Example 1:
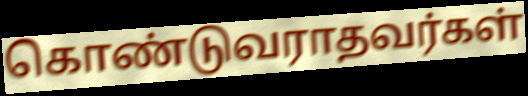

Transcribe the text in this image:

கொண்டுவராதவர்கள்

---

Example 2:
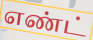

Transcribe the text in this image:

எண்ட்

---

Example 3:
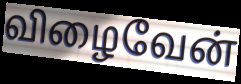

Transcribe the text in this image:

விழைவேன்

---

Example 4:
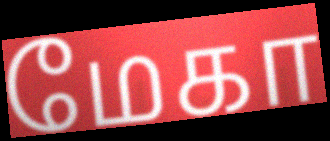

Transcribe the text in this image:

மேகா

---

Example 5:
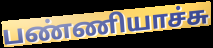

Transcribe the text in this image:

பண்ணியாச்சு